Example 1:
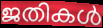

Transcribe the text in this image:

ജതികൾ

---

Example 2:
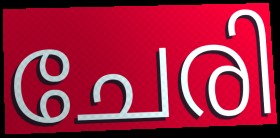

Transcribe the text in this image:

ചേരി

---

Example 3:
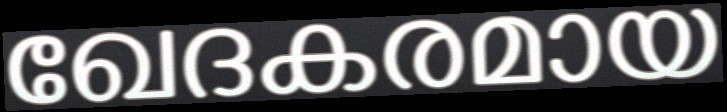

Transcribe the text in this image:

ഖേദകരമായ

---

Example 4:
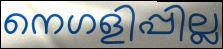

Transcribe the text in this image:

നെഗളിപ്പില്ല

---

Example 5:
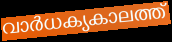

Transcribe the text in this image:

വാർധക്യകാലത്ത്